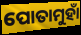
ପୋତାମୁହାଁ